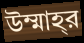
উম্মাহ্‌র